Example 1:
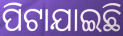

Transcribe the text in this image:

ପିଟାଯାଇଛି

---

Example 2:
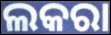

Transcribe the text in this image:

ଲକରା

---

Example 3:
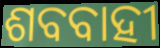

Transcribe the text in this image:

ଶବବାହୀ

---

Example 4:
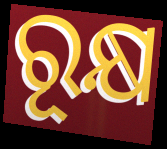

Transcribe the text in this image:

ରୂକ୍ଷ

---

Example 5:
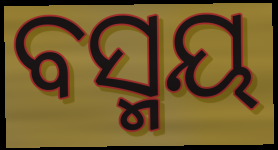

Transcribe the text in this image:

ବସ୍ମୟ